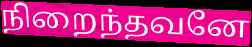
நிறைந்தவனே